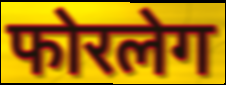
फोरलेग